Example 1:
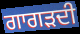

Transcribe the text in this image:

ਗਾਗੜਦੀ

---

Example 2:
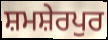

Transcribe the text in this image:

ਸ਼ਮਸ਼ੇਰਪੁਰ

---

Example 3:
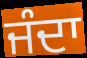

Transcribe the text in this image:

ਜੰਦਾ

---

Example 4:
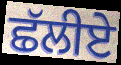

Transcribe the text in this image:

ਛੱਲੀਏ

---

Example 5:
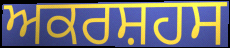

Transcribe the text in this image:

ਅਕਰਸ਼ਹਸ